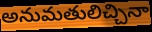
అనుమతులిచ్చినా